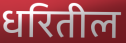
धरितील